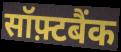
सॉफ़्टबैंक